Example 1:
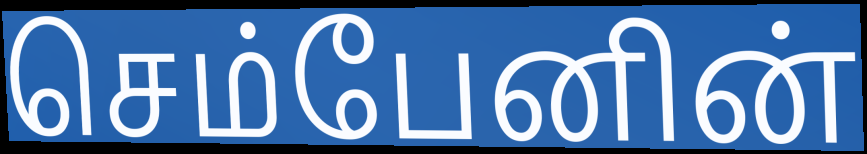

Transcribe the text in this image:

செம்பேனின்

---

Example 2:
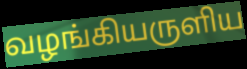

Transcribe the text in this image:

வழங்கியருளிய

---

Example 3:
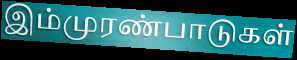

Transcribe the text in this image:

இம்முரண்பாடுகள்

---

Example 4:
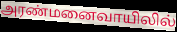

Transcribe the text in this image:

அரண்மனைவாயிலில்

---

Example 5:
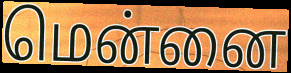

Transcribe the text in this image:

மென்னை